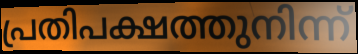
പ്രതിപക്ഷത്തുനിന്ന്